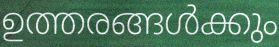
ഉത്തരങ്ങൾക്കും